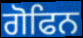
ਗੋਫਿਨ